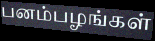
பனம்பழங்கள்